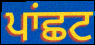
ਪਾਂਛਟ